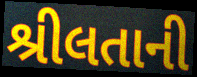
શ્રીલતાની